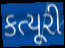
કત્યૂરી